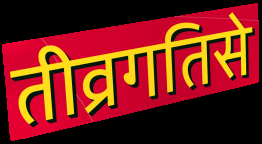
तीव्रगतिसे